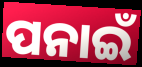
ପନାଇଁ